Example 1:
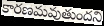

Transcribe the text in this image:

కారణమవుతుందని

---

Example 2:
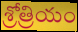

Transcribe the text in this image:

శ్రోత్రియం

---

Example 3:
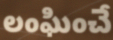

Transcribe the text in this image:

లంఘించే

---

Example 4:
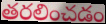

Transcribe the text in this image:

తరలించడం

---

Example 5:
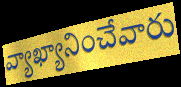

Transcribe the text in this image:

వ్యాఖ్యానించేవారు